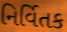
નિર્વિતક